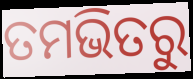
ତମଭିତରୁ